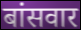
बांसवार